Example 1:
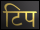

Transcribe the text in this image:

टिप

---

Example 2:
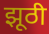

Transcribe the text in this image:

झूठी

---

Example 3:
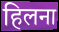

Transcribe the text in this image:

हिलना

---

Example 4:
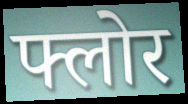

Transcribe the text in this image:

फ्लोर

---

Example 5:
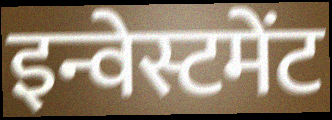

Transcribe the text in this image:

इन्वेस्टमेंट